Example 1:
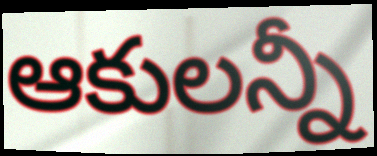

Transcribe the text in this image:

ఆకులన్నీ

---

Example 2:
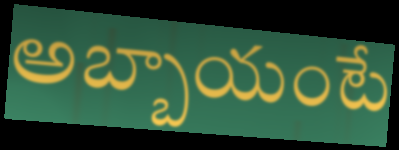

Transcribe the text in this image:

అబ్బాయంటే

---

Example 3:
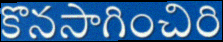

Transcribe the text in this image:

కొనసాగించిరి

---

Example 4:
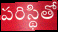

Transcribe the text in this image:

పరిస్థితో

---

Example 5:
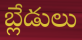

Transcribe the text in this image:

బ్లేడులు